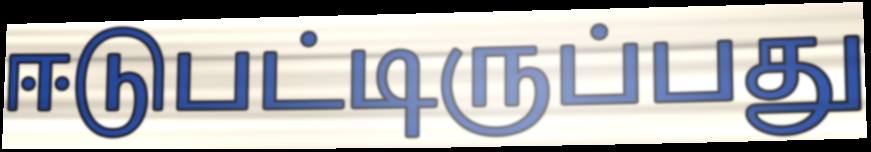
ஈடுபட்டிருப்பது